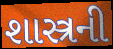
શાસ્ત્રની